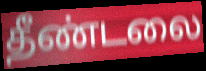
தீண்டலை